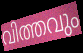
വിത്തവും